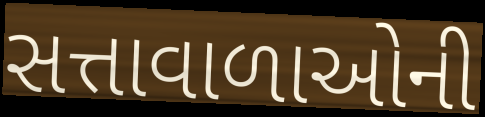
સત્તાવાળાઓની